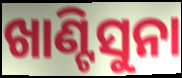
ଖାଣ୍ଟିସୁନା